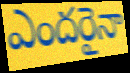
ఎందరైనా